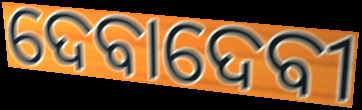
ଦେବାଦେବୀ